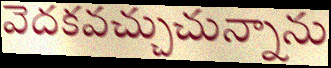
వెదకవచ్చుచున్నాను